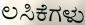
ಲಸಿಕೆಗಳು